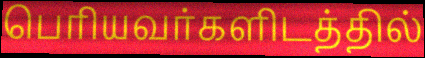
பெரியவர்களிடத்தில்